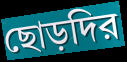
ছোড়দির